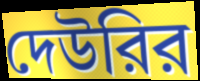
দেউরির